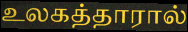
உலகத்தாரால்